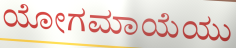
ಯೋಗಮಾಯೆಯು